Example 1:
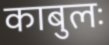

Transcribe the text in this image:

काबुलः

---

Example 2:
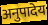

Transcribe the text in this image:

अनुपादेय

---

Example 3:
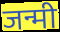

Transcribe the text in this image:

जन्मी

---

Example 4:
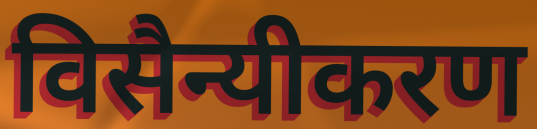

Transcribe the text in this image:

विसैन्यीकरण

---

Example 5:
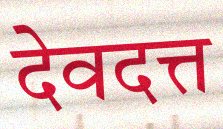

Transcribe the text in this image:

देवदत्त